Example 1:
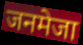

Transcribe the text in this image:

जनमेजा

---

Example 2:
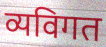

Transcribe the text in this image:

व्यविगत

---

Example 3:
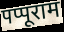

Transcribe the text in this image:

पप्पूराम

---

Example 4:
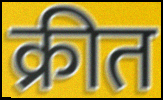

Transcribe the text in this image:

क्रीत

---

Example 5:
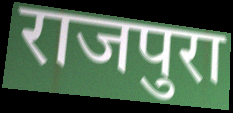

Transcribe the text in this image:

राजपुरा